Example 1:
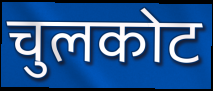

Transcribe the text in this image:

चुलकोट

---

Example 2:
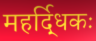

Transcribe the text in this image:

महर्द्धिकः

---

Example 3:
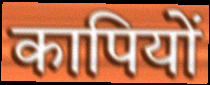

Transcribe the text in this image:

कापियों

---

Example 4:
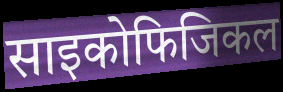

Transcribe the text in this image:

साइकोफिजिकल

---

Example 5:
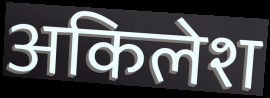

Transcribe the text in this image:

अकिलेश